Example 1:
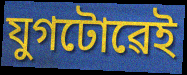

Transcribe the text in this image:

যুগটোৱেই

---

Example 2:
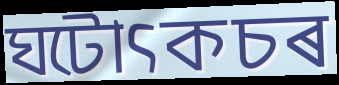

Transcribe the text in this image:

ঘটোৎকচৰ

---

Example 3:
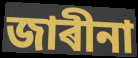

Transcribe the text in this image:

জাৰীনা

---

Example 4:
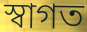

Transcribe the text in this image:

স্বাগত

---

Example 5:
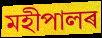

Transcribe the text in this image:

মহীপালৰ